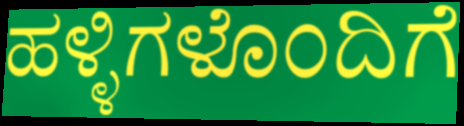
ಹಳ್ಳಿಗಳೊಂದಿಗೆ